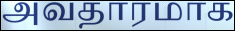
அவதாரமாக